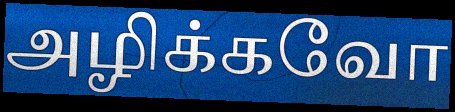
அழிக்கவோ